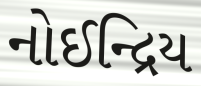
નોઈન્દ્રિય